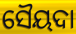
ସୈୟଦା